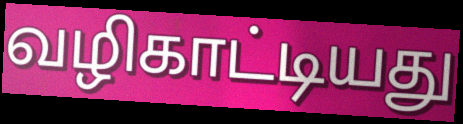
வழிகாட்டியது